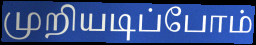
முறியடிப்போம்